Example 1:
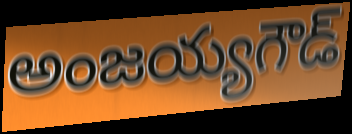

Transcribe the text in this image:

అంజయ్యగౌడ్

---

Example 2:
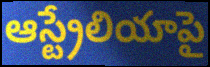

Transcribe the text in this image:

ఆస్ట్రేలియాపై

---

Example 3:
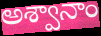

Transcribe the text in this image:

అశ్వానాం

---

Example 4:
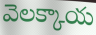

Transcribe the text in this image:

వెలక్కాయ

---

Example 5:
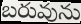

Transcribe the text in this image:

బరువును